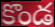
కొండ